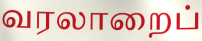
வரலாறைப்